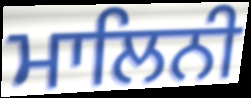
ਮਾਲਿਨੀ